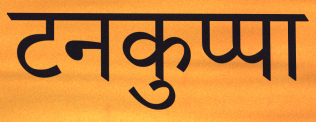
टनकुप्पा